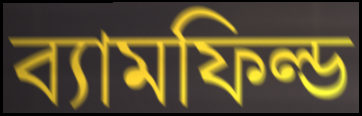
ব্যামফিল্ড